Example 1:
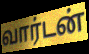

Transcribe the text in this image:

வார்டன்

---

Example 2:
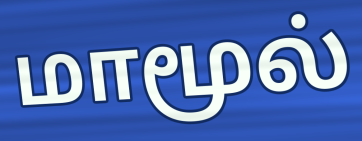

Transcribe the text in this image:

மாமூல்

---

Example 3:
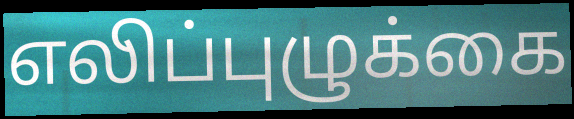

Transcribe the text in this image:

எலிப்புழுக்கை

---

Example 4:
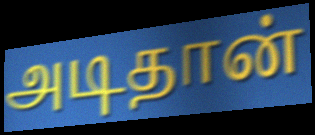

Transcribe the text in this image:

அடிதான்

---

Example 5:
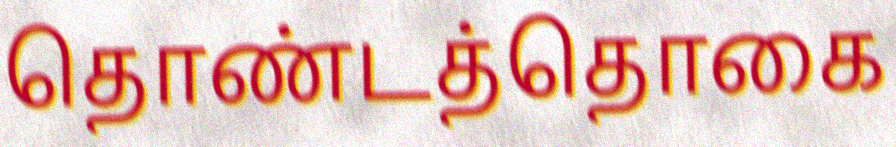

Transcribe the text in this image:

தொண்டத்தொகை